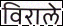
विराले